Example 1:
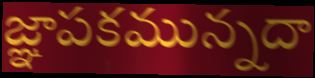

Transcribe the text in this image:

జ్ఞాపకమున్నదా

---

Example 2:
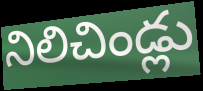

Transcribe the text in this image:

నిలిచిండ్లు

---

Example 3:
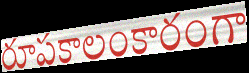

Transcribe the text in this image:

రూపకాలంకారంగా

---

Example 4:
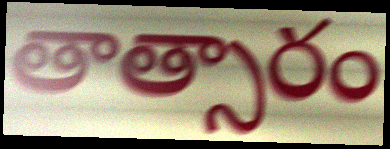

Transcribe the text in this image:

తాత్సారం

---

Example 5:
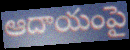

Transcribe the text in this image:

ఆదాయంపై